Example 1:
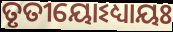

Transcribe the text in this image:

ତୃତୀୟୋଽଧ୍ୟାୟଃ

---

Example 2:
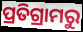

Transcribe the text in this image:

ପ୍ରତିଗ୍ରାମରୁ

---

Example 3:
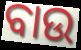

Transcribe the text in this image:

ବାଉ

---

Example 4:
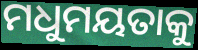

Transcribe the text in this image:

ମଧୁମୟତାକୁ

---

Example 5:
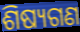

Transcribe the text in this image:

ଶିଷ୍ୟଗଣ